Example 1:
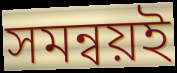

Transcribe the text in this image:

সমন্বয়ই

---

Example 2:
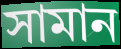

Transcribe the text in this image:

সামান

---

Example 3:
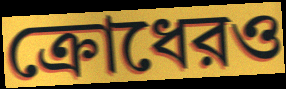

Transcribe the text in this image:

ক্রোধেরও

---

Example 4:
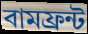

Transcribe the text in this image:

বামফ্রন্ট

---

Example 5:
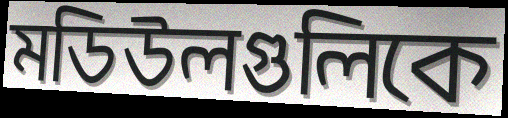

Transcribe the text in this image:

মডিউলগুলিকে